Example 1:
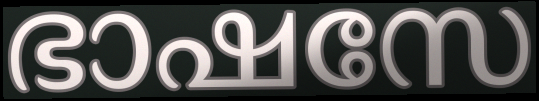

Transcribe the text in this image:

ഭാഷസേ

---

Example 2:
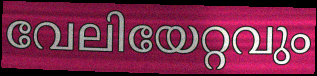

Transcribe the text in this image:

വേലിയേറ്റവും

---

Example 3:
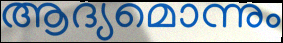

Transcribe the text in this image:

ആദ്യമൊന്നും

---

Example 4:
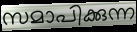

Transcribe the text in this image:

സമാപിക്കുന്ന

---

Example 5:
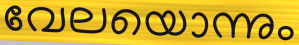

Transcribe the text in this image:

വേലയൊന്നും